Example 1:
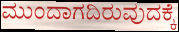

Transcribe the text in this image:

ಮುಂದಾಗದಿರುವುದಕ್ಕೆ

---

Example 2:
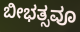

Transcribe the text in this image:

ಬೀಭತ್ಸವೂ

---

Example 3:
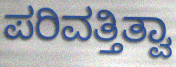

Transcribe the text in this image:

ಪರಿವತ್ತಿತ್ವಾ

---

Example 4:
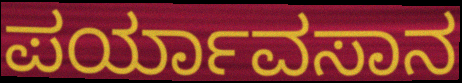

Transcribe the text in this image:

ಪರ್ಯಾವಸಾನ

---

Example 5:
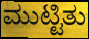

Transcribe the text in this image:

ಮುಟ್ಟಿತು